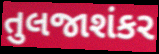
તુલજાશંકર